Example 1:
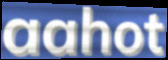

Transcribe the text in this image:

aahot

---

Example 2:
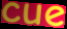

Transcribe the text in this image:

cue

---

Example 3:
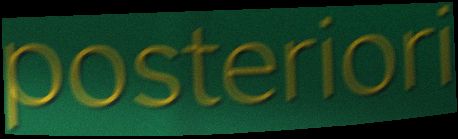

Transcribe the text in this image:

posteriori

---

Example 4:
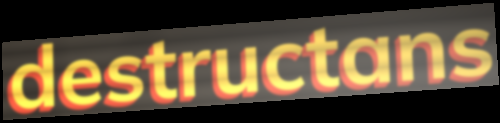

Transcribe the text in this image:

destructans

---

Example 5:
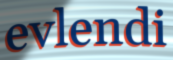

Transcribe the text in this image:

evlendi